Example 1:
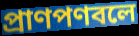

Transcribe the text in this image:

প্রাণপণবলে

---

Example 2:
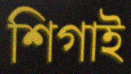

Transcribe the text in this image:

শিগাই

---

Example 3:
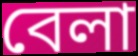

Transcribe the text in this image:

বেলা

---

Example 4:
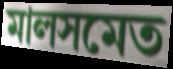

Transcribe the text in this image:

মালসমেত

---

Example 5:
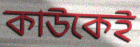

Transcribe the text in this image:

কাউকেই